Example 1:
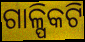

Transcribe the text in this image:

ଗାଳ୍ପିକଟି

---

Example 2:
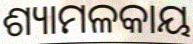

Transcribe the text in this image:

ଶ୍ୟାମଳକାୟ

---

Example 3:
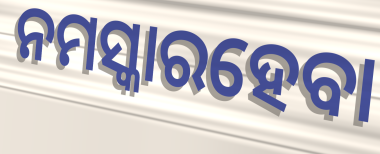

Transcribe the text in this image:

ନମସ୍କାରହେବା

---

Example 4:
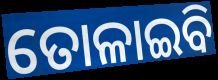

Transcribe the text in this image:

ତୋଳାଇବି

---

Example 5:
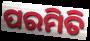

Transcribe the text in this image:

ପରମିତି